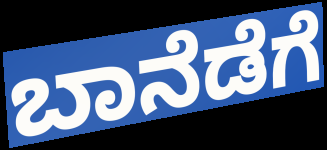
ಬಾನೆಡೆಗೆ